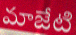
మాజేటి